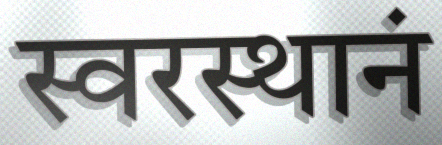
स्वरस्थानं